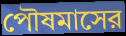
পৌষমাসের